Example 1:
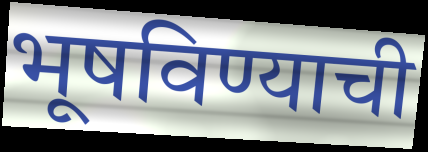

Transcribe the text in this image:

भूषविण्याची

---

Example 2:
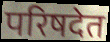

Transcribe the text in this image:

परिषदेत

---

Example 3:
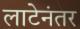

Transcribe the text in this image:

लाटेनंतर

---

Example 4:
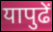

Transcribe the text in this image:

यापुढें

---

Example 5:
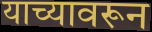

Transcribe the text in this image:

याच्यावरून